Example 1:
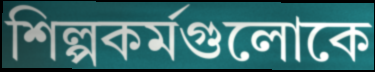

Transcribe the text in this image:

শিল্পকর্মগুলোকে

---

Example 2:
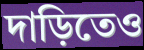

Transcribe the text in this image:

দাড়িতেও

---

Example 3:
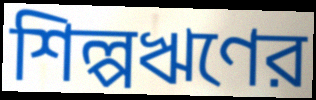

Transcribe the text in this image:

শিল্পঋণের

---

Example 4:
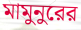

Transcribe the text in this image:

মামুনুরের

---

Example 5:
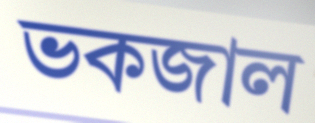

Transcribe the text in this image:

ভকজাল